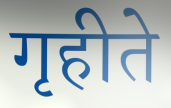
गृहीते